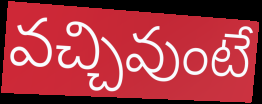
వచ్చివుంటే